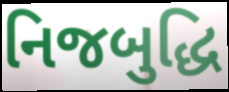
નિજબુદ્ધિ